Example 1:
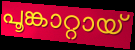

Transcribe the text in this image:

പൂങ്കാറ്റായ്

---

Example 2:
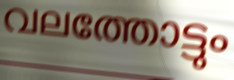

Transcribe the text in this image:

വലത്തോട്ടും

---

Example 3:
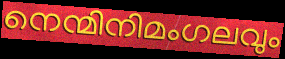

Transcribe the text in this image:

നെന്മിനിമംഗലവും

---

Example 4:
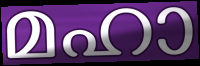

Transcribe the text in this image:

മഹാ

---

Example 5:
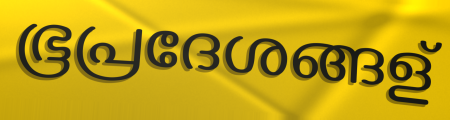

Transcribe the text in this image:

ഭൂപ്രദേശങ്ങള്